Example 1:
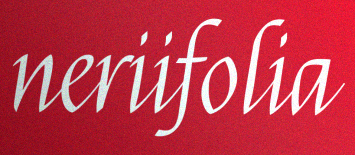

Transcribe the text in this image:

neriifolia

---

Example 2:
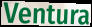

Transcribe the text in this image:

Ventura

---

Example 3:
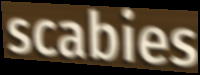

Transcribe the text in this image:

scabies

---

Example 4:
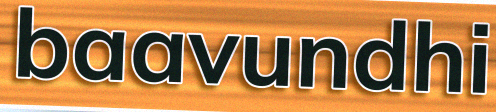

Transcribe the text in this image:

baavundhi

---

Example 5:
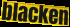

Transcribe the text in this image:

blacken